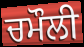
ਚਮੌਲੀ